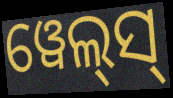
ୱେଲ୍‌ସ୍